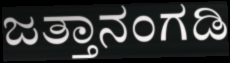
ಜತ್ತಾನಂಗಡಿ